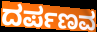
ದರ್ಪಣವ